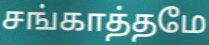
சங்காத்தமே